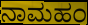
ನಾಮಹಂ